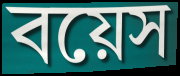
বয়েস